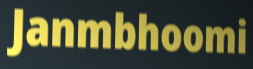
Janmbhoomi